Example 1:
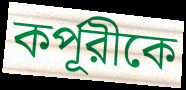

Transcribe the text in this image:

কর্পূরীকে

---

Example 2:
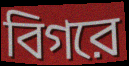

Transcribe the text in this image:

বিগরে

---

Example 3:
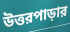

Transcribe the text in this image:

উত্তরপাড়ার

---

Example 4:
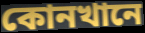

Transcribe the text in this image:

কোনখানে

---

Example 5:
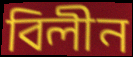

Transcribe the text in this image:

বিলীন